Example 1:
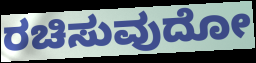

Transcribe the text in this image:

ರಚಿಸುವುದೋ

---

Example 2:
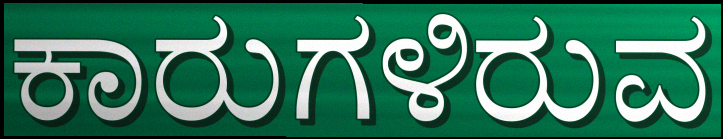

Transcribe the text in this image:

ಕಾರುಗಳಿರುವ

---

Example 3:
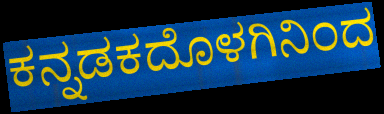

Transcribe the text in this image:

ಕನ್ನಡಕದೊಳಗಿನಿಂದ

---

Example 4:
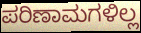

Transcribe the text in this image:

ಪರಿಣಾಮಗಳಿಲ್ಲ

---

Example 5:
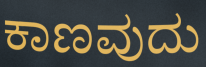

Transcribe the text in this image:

ಕಾಣವುದು